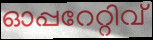
ഓപ്പറേറ്റിവ്